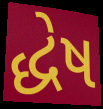
દ્ધેષ